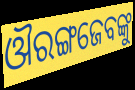
ଔରଙ୍ଗଜେବଙ୍କୁ